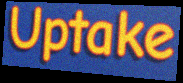
Uptake